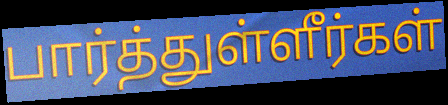
பார்த்துள்ளீர்கள்